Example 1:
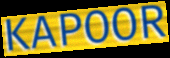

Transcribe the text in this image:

KAPOOR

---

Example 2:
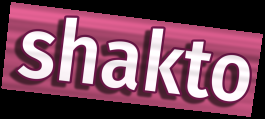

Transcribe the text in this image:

shakto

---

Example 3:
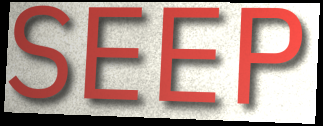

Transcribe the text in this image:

SEEP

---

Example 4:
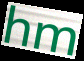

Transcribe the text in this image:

hm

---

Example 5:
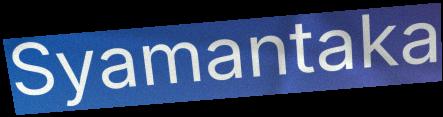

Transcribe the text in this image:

Syamantaka